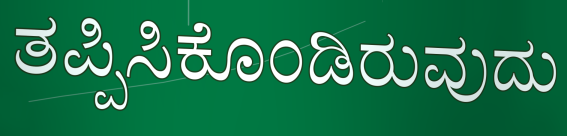
ತಪ್ಪಿಸಿಕೊಂಡಿರುವುದು